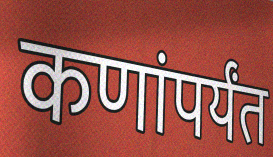
कणांपर्यंत